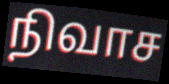
நிவாச